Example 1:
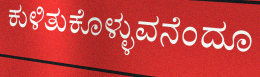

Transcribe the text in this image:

ಕುಳಿತುಕೊಳ್ಳುವನೆಂದೂ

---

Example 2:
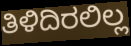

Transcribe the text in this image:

ತಿಳಿದಿರಲಿಲ್ಲ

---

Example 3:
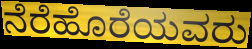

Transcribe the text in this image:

ನೆರೆಹೊರೆಯವರು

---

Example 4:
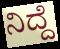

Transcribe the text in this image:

ನಿದ್ದೆ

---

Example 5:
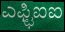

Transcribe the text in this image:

ಎಫ್ಟಿಐಐ